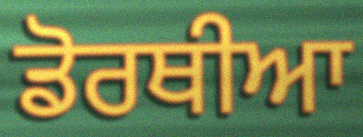
ਡੋਰਥੀਆ